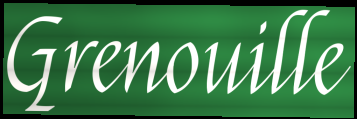
Grenouille